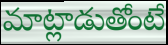
మాట్లాడుతోంటే